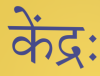
केंद्रः